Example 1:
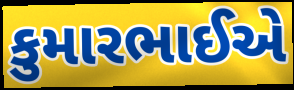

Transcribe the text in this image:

કુમારભાઈએ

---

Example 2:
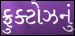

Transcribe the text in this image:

ફ્રુક્ટોઝનું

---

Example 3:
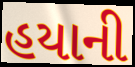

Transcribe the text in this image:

હયાની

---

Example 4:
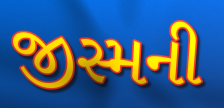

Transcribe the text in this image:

જીસ્મની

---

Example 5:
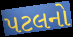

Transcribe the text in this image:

પટલનો